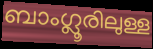
ബാംഗ്ലൂരിലുള്ള